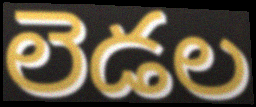
లెడల